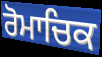
ਰੋਮਾਚਿਕ